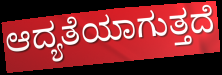
ಆದ್ಯತೆಯಾಗುತ್ತದೆ